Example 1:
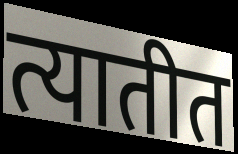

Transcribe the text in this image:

त्यातीत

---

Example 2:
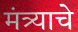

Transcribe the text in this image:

मंत्र्याचे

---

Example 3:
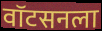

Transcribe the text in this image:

वॉटसनला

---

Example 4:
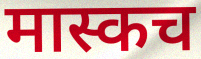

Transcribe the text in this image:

मास्कच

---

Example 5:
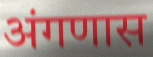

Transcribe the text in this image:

अंगणास